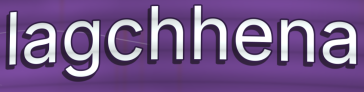
lagchhena